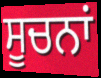
ਸੂਚਨਾਂ